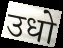
उधो